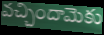
వచ్చిందామెకు